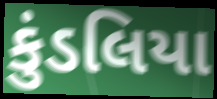
કુંડલિયા